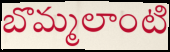
బొమ్మలాంటి